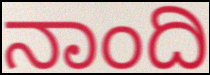
ನಾಂದಿ